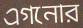
এগনোর